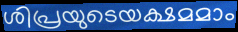
ശിപ്രയുടെയക്ഷമമാം